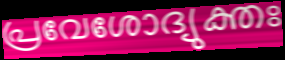
പ്രവേശോദ്യുക്തഃ